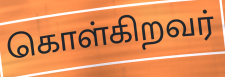
கொள்கிறவர்